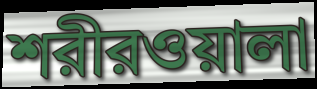
শরীরওয়ালা